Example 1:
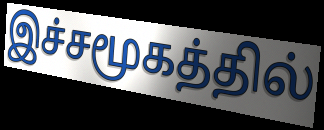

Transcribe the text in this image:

இச்சமூகத்தில்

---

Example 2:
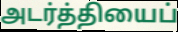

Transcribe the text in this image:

அடர்த்தியைப்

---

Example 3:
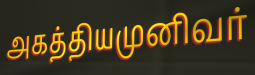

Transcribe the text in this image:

அகத்தியமுனிவர்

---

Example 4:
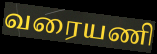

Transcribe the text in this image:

வரையணி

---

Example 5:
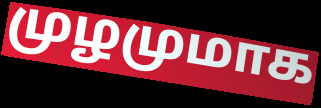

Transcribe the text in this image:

முழமுமாக